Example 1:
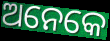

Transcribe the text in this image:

ଅନେକେ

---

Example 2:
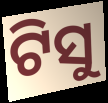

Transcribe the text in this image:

ଟିସୁ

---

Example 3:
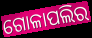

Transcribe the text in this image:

ଗୋଳାପଲିର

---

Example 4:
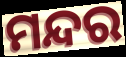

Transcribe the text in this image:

ମନ୍ଦର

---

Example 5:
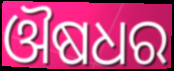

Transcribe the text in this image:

ଔଷଧର